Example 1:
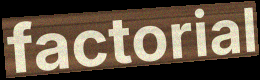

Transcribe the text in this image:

factorial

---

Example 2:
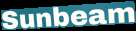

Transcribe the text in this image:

Sunbeam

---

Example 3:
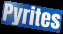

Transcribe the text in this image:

Pyrites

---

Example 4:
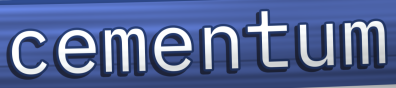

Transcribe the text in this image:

cementum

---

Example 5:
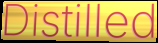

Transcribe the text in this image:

Distilled